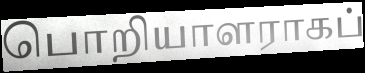
பொறியாளராகப்